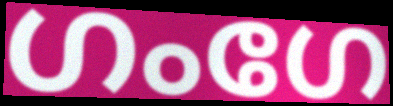
ഗംഗേ